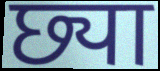
छ्या